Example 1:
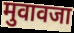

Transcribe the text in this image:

मुवावजा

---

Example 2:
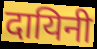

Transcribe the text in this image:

दायिनी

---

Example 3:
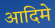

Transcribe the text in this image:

आदिमे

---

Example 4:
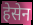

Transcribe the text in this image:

हेसेन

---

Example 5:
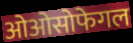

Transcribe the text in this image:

ओओसोफेगल